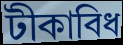
টীকাবিধ